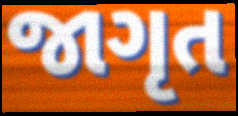
જાગૃત